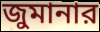
জুমানার